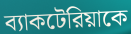
ব্যাকটেরিয়াকে